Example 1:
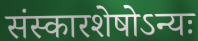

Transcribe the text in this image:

संस्कारशेषोऽन्यः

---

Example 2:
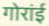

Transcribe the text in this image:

गोरांई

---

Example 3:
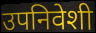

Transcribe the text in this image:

उपनिवेशी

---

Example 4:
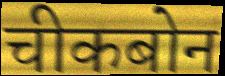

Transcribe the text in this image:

चीकबोन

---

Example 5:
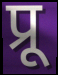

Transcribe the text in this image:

प्रू